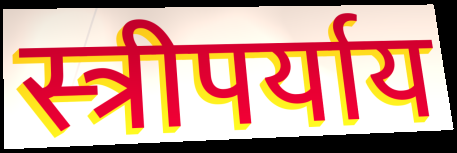
स्त्रीपर्याय